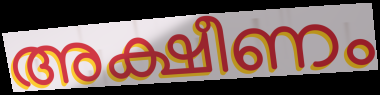
അക്ഷീണം